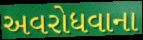
અવરોધવાના